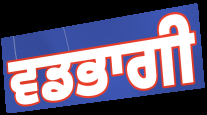
ਵਡਭਾਗੀ